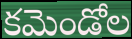
కమెండోల